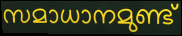
സമാധാനമുണ്ട്